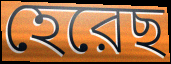
হেরেছ